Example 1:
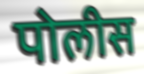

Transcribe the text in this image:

पोलीस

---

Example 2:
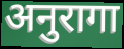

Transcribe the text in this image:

अनुरागा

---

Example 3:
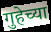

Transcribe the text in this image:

गुहेच्या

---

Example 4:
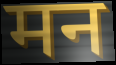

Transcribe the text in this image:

मन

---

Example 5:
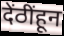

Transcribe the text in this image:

देंठींहून